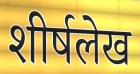
शीर्षलेख